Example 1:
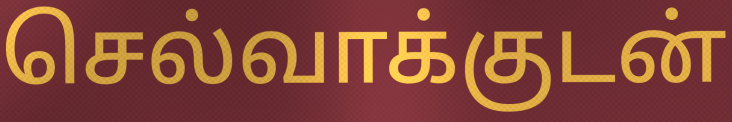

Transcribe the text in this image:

செல்வாக்குடன்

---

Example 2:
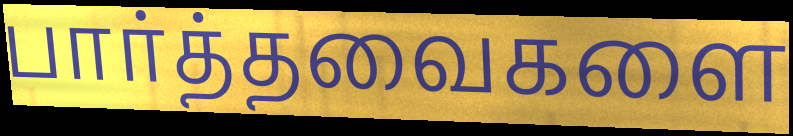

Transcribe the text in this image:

பார்த்தவைகளை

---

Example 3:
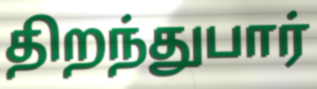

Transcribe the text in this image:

திறந்துபார்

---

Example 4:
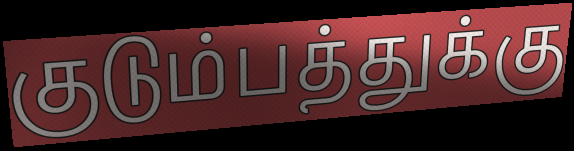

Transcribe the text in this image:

குடும்பத்துக்கு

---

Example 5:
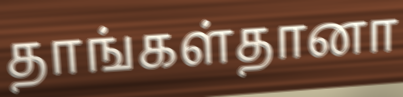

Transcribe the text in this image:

தாங்கள்தானா